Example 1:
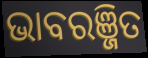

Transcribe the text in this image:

ଭାବରଞ୍ଜିତ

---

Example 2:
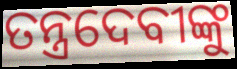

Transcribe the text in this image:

ତନ୍ତ୍ରଦେବୀଙ୍କୁ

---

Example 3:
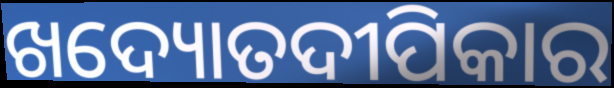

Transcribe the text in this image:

ଖଦ୍ୟୋତଦୀପିକାର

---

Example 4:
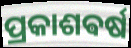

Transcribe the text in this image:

ପ୍ରକାଶଵର୍ଷ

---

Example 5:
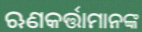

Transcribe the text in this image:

ଋଣକର୍ତ୍ତାମାନଙ୍କ